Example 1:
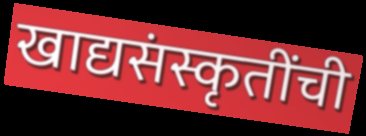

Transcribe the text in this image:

खाद्यसंस्कृतींची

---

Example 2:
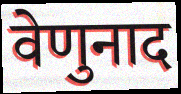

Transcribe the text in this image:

वेणुनाद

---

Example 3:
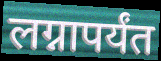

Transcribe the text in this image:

लग्नापर्यंत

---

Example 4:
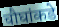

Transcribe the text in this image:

चौघांकडे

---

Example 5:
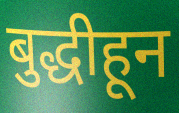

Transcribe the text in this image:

बुद्धीहून